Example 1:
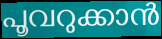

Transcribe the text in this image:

പൂവറുക്കാൻ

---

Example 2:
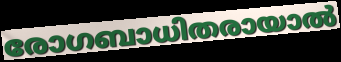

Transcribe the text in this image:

രോഗബാധിതരായാൽ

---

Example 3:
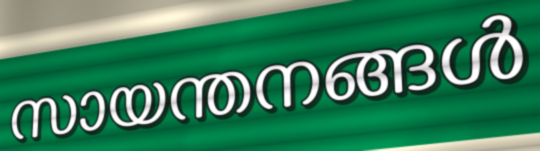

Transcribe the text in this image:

സായന്തനങ്ങൾ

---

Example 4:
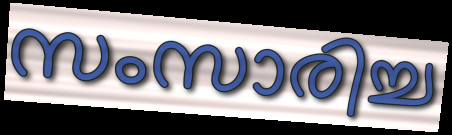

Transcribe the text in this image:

സംസാരിച്ച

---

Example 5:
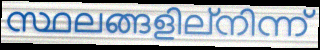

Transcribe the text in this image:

സ്ഥലങ്ങളില്നിന്ന്